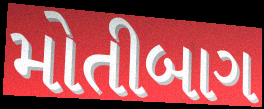
મોતીબાગ